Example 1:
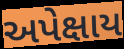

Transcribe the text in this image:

અપેક્ષાય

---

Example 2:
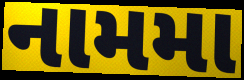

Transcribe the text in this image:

નામમા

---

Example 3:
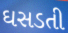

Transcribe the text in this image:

ઘસડતી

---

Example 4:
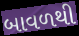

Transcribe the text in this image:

બાવળથી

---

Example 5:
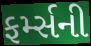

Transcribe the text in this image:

ફર્મ્સની